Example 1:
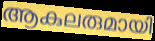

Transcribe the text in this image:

ആകുലരുമായി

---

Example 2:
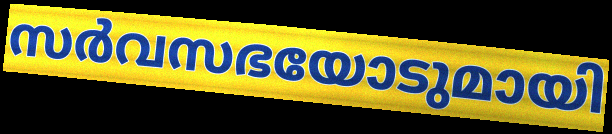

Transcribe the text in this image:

സർവസഭയോടുമായി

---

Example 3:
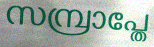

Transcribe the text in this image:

സമ്പ്രാപ്തേ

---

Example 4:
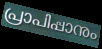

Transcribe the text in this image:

പ്രാപിപ്പാനും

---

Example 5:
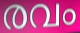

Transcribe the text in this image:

രവം